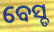
ବେସ୍ଡ